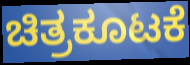
ಚಿತ್ರಕೂಟಕೆ